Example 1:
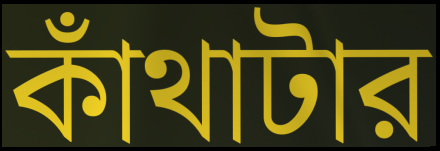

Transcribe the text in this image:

কাঁথাটার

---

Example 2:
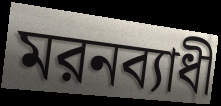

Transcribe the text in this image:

মরনব্যাধী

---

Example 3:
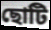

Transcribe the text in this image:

ছোটি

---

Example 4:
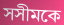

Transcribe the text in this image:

সসীমকে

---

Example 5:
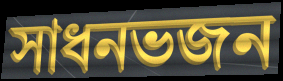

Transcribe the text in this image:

সাধনভজন